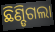
ଛିଣ୍ଡିଗଲା